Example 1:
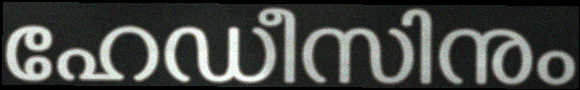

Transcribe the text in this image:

ഹേഡീസിനും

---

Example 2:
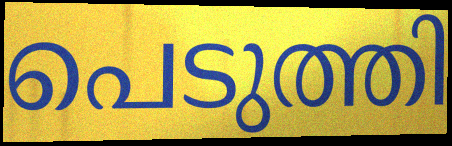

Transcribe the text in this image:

പെടുത്തി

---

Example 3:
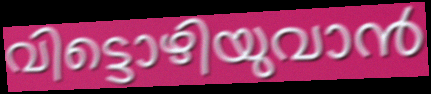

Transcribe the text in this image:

വിട്ടൊഴിയുവാൻ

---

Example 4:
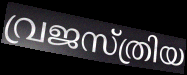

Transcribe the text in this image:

വ്രജസ്ത്രിയ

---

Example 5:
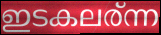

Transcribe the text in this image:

ഇടകലര്ന്ന